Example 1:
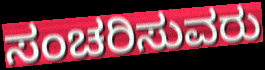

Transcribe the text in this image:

ಸಂಚರಿಸುವರು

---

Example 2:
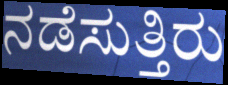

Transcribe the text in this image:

ನಡೆಸುತ್ತಿರು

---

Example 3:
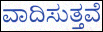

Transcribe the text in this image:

ವಾದಿಸುತ್ತವೆ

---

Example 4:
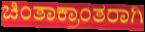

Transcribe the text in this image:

ಚಿಂತಾಕ್ರಾಂತರಾಗಿ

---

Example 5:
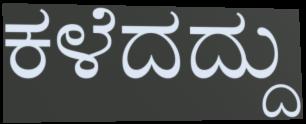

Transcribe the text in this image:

ಕಳೆದದ್ದು